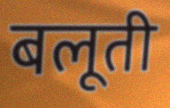
बलूती